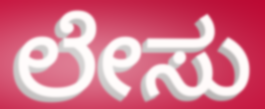
ಲೇಸು